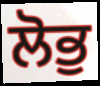
ਲੋਭੁ